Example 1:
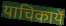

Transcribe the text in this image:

याचिकायें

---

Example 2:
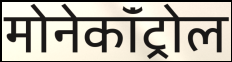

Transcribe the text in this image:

मोनेकॉंट्रोल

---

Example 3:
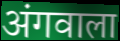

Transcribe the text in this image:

अंगवाला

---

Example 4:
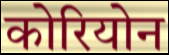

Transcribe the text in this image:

कोरियोन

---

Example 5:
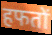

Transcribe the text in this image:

हफतों